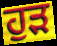
ਹੁੜ